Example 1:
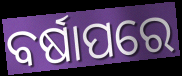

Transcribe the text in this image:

ବର୍ଷାପରେ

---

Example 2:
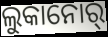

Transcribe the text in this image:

ଲୁକାନୋର୍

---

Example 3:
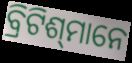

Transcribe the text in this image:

ବ୍ରିଟିଶ୍‌ମାନେ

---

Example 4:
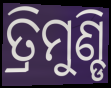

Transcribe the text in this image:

ତ୍ରିମୁଣ୍ଡି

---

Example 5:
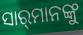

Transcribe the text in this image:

ସାର୍‌ମାନଙ୍କୁ